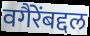
वगैरेंबद्दल